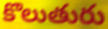
కొలుతురు